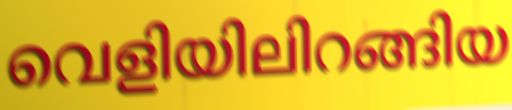
വെളിയിലിറങ്ങിയ